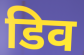
डिव